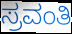
ಸ್ರವಂತಿ